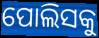
ପୋଲିସକୁ